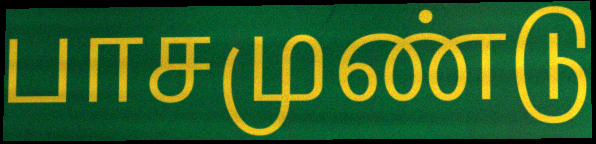
பாசமுண்டு